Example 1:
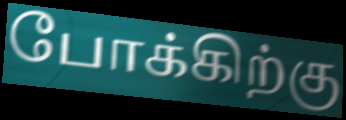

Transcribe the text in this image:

போக்கிற்கு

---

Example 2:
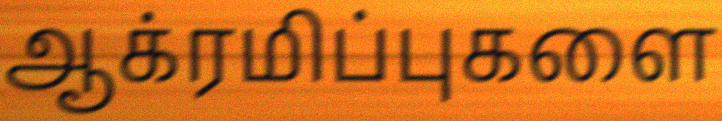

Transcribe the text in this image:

ஆக்ரமிப்புகளை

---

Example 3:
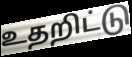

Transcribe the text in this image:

உதறிட்டு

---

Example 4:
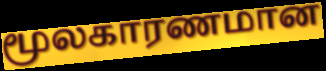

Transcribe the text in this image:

மூலகாரணமான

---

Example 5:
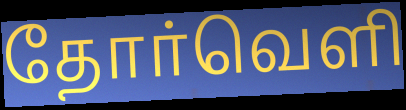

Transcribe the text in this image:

தோர்வெளி